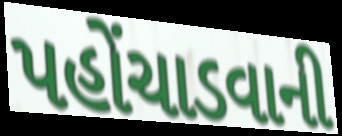
પહોંચાડવાની